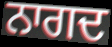
ਨਾਗਦ